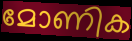
മോണിക